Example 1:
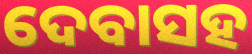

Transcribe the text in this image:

ଦେବାସହ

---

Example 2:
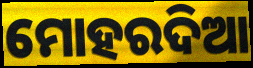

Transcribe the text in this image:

ମୋହରଦିଆ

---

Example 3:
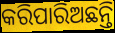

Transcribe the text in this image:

କରିପାରିଅଛନ୍ତି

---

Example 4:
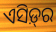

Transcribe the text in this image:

ଏସିଡ଼୍‌ର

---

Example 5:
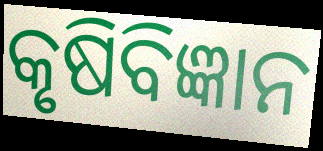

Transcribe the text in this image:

କୃଷିବିଜ୍ଞାନ